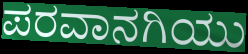
ಪರವಾನಗಿಯು